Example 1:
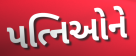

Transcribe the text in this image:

પત્નિઓને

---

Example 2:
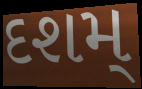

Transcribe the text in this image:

દશમ્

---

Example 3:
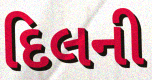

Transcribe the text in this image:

દિલની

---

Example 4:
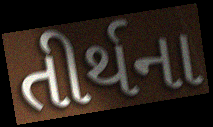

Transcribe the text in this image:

તીર્થના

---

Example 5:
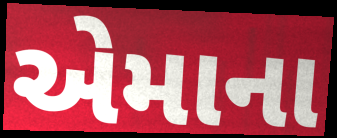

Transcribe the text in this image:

એમાના